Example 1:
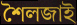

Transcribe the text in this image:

শৈলজাই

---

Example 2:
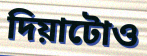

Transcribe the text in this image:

দিয়াটোও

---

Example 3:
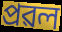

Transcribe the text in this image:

প্ৰৱল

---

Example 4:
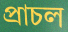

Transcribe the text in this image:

প্ৰাচল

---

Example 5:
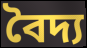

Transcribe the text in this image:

বৈদ্য